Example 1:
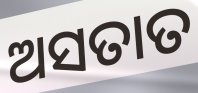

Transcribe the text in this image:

ଅସତାତ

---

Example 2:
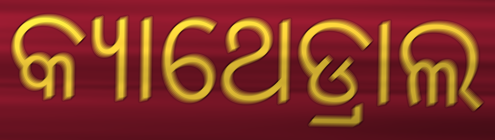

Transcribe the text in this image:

କ୍ୟାଥେଡ୍ରାଲ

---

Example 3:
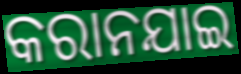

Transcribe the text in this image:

କରାନଯାଇ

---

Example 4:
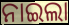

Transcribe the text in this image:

ନାଇଲା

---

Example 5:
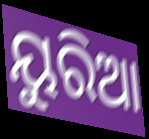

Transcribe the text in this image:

ୟୁରିଆ